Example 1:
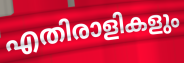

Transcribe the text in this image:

എതിരാളികളും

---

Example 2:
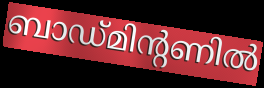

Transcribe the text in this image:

ബാഡ്മിന്റണിൽ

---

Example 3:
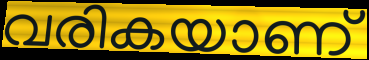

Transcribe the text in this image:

വരികയാണ്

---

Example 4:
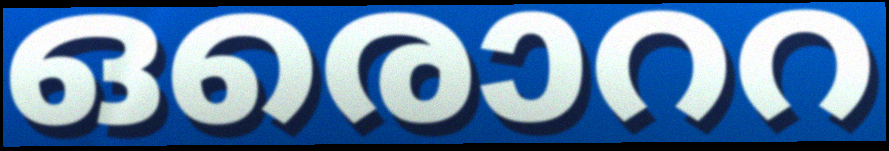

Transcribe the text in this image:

ഒരൊററ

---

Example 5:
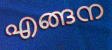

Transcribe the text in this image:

എങ്ങന